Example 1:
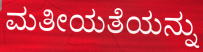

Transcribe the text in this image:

ಮತೀಯತೆಯನ್ನು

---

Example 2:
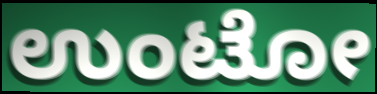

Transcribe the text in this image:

ಉಂಟೋ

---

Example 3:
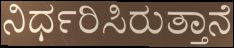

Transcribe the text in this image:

ನಿರ್ಧರಿಸಿರುತ್ತಾನೆ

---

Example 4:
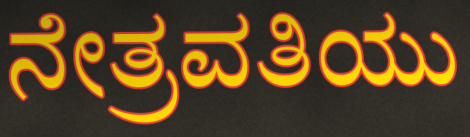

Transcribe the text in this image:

ನೇತ್ರವತಿಯು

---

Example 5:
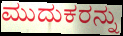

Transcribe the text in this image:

ಮುದುಕರನ್ನು